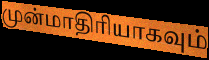
முன்மாதிரியாகவும்